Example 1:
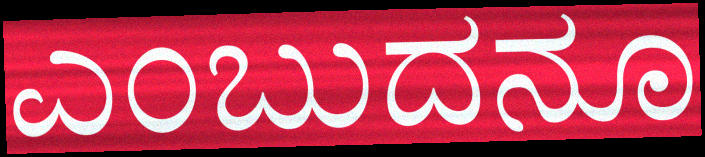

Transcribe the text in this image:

ಎಂಬುದನೂ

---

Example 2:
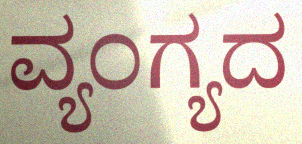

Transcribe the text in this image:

ವ್ಯಂಗ್ಯದ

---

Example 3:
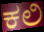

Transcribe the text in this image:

ಕಲಿ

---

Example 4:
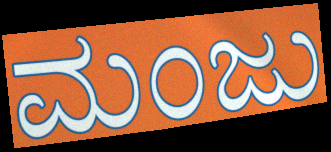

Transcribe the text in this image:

ಮಂಜು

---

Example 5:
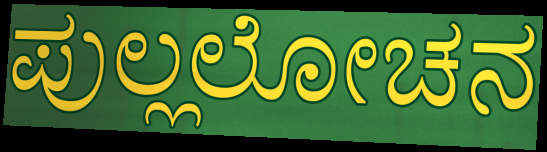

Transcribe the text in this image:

ಪುಲ್ಲಲೋಚನ